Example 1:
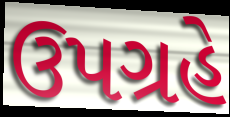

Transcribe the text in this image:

ઉપગ્રહે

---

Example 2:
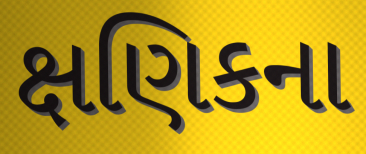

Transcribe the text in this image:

ક્ષણિકના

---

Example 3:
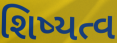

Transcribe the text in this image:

શિષ્યત્વ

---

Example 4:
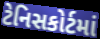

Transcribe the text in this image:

ટેનિસકોર્ટમાં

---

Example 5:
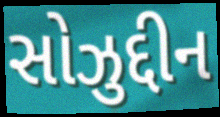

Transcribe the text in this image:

સોઝુદ્દીન